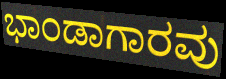
ಭಾಂಡಾಗಾರವು